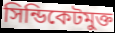
সিন্ডিকেটমুক্ত